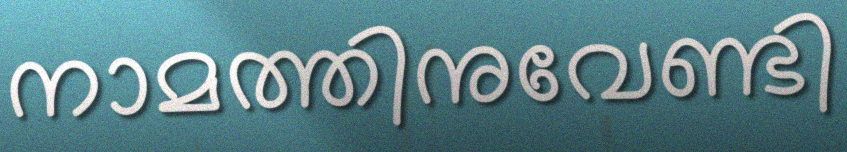
നാമത്തിനുവേണ്ടി